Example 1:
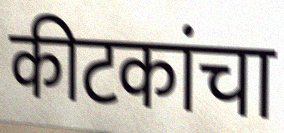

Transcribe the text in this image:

कीटकांचा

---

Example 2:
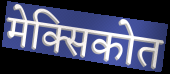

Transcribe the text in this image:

मेक्सिकोत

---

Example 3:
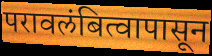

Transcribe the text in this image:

परावलंबित्वापासून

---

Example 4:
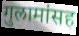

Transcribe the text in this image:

गुलामांसह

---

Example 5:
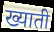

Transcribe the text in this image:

ख्याती